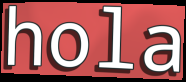
hola